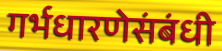
गर्भधारणेसंबंधी